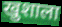
खुशाला